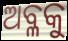
ଅବ୍ଳକୁ